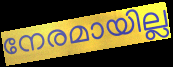
നേരമായില്ല